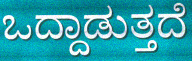
ಒದ್ದಾಡುತ್ತದೆ